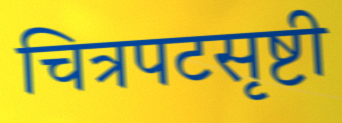
चित्रपटसृष्टी